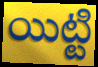
యిట్టి